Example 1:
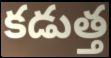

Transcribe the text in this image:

కడుత్త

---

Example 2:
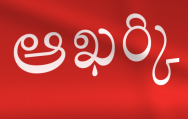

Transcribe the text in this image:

ఆఖర్కి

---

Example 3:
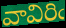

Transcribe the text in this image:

వావిరిఁ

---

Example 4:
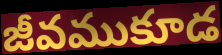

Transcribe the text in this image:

జీవముకూడ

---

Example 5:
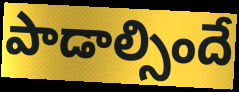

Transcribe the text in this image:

పాడాల్సిందే